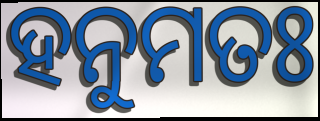
ହନୁମତଃ